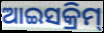
ଆଇସକ୍ରିମ୍